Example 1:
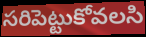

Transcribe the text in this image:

సరిపెట్టుకోవలసి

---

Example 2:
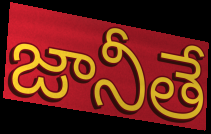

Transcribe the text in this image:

జానీతే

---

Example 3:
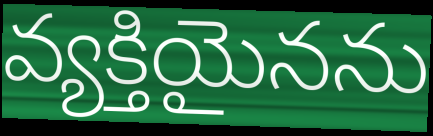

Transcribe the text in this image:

వ్యక్తియైనను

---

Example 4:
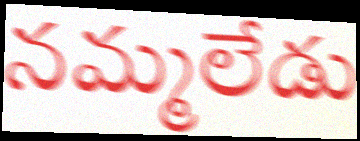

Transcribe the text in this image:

నమ్మలేడు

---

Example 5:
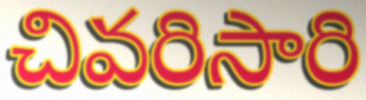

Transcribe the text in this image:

చివరిసారి